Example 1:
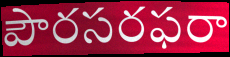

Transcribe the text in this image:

పౌరసరఫరా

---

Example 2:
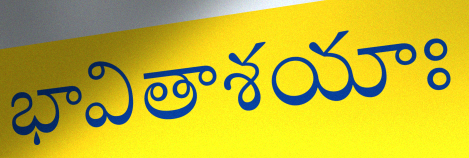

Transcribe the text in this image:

భావితాశయాః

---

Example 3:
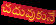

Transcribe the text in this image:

చదువుకునే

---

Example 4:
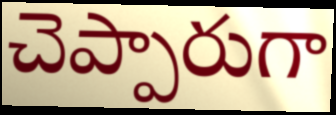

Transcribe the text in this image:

చెప్పారుగా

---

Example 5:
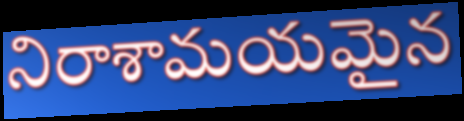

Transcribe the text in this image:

నిరాశామయమైన